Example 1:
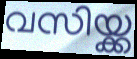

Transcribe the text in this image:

വസിയ്ക്ക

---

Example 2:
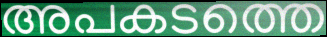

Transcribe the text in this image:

അപകടത്തെ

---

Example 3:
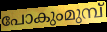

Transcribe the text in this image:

പോകുംമുമ്പ്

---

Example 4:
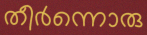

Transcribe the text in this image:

തീർന്നൊരു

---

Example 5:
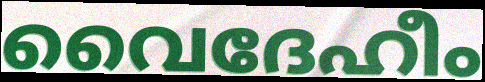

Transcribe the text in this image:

വൈദേഹീം